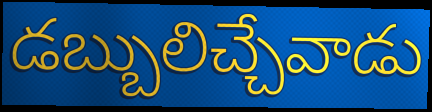
డబ్బులిచ్చేవాడు